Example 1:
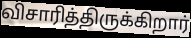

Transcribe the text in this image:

விசாரித்திருக்கிறார்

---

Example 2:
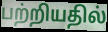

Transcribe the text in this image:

பற்றியதில்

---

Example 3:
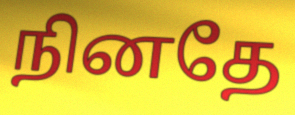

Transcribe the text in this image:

நினதே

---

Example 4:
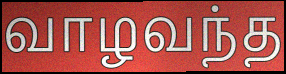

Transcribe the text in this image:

வாழவந்த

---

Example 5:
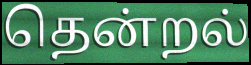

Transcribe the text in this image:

தென்றல்